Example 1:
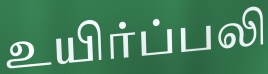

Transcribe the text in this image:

உயிர்ப்பலி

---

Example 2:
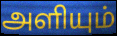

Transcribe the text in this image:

அளியும்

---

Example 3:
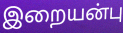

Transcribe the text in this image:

இறையன்பு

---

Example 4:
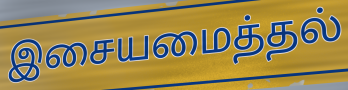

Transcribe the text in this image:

இசையமைத்தல்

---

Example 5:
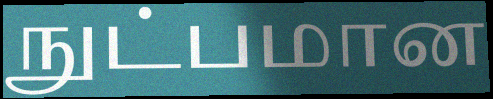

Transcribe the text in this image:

நுட்பமான